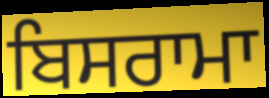
ਬਿਸਰਾਮਾ